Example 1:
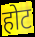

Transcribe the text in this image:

होट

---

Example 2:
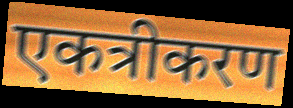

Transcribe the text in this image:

एकत्रीकरण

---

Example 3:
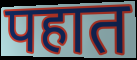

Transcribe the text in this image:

पहात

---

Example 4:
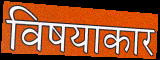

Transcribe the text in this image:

विषयाकार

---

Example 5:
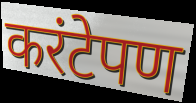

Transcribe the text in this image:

करंटेपण